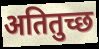
अतितुच्छ